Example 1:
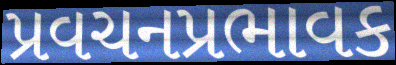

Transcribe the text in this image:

પ્રવચનપ્રભાવક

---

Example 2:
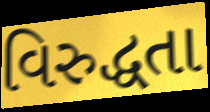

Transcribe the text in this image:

વિરુદ્ધતા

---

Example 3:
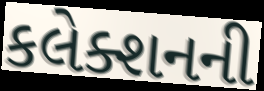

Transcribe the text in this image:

કલેક્શનની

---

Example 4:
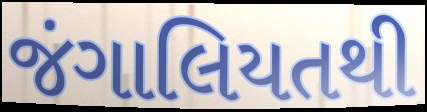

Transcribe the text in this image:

જંગાલિયતથી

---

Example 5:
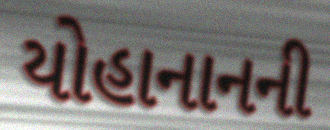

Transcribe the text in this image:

યોહાનાનની